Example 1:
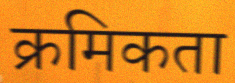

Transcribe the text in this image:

क्रमिकता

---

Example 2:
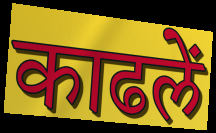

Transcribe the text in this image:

काढलें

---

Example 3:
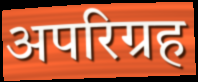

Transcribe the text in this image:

अपरिग्रह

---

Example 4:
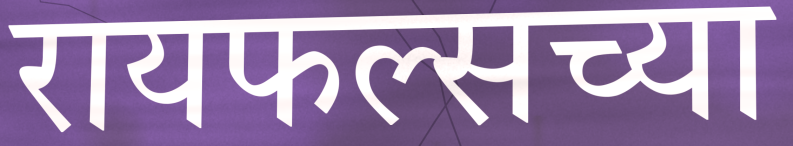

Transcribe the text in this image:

रायफल्सच्या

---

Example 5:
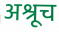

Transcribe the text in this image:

अश्रूच